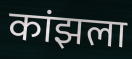
कांझला